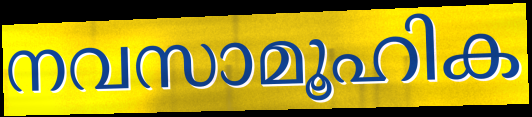
നവസാമൂഹിക